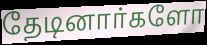
தேடினார்களோ